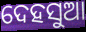
ଦେହସୁଆ